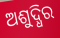
ଅଶୁଦ୍ଧିର